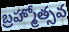
బ్రహ్మోత్సవ